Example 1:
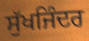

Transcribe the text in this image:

ਸੁੱਖਜਿੰਦਰ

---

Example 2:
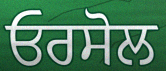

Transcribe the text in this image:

ਓਰਸੋਲ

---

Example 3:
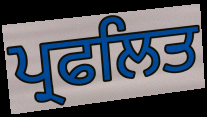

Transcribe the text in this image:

ਪ੍ਰਫਲਿਤ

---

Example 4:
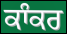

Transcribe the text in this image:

ਕਾੰਕਰ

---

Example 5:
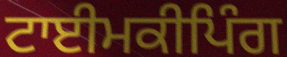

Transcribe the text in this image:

ਟਾਈਮਕੀਪਿੰਗ